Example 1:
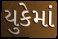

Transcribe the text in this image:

યુકેમાં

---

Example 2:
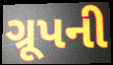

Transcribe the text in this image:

ગ્રૂપની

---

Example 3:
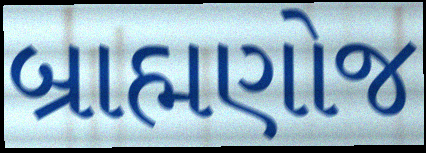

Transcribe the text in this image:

બ્રાહ્મણોજ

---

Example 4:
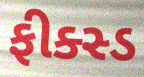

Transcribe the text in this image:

ફીક્સ્ડ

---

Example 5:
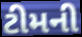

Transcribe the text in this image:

ટીમની